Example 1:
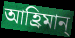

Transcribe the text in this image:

আহ্রিমান্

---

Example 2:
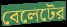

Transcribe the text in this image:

বেলেটের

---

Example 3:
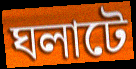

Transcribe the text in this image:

ঘলাটে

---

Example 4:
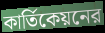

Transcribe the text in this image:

কার্তিকেয়নের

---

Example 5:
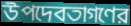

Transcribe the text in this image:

উপদেবতাগণের